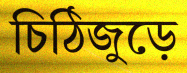
চিঠিজুড়ে